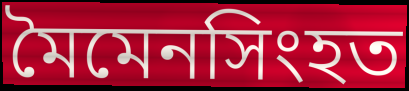
মৈমেনসিংহত